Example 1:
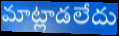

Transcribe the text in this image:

మాట్లాడలేదు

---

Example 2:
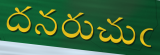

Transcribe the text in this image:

దనరుచుఁ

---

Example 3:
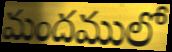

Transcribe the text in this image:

మందములో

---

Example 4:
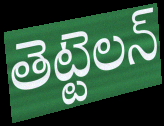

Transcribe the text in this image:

తెట్టెలన్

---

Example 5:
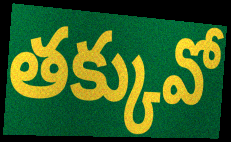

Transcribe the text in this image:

తక్కువో